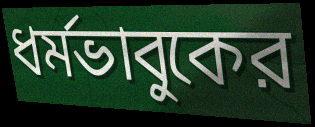
ধর্মভাবুকের